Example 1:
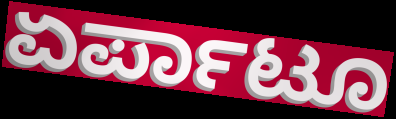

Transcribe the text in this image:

ಏರ್ಪಾಟೂ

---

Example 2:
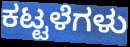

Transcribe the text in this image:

ಕಟ್ಟಳೆಗಳು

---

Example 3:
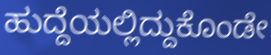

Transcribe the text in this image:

ಹುದ್ದೆಯಲ್ಲಿದ್ದುಕೊಂಡೇ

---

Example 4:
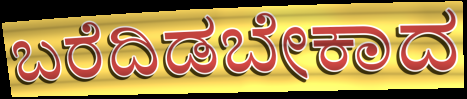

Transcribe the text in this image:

ಬರೆದಿಡಬೇಕಾದ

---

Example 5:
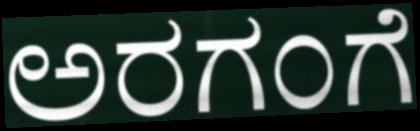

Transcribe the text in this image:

ಅರಗಂಗೆ